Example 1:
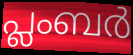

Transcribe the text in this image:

പ്ലംബർ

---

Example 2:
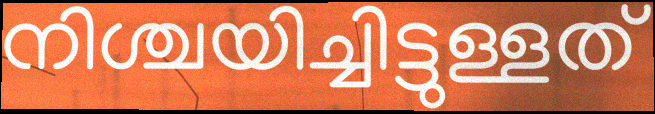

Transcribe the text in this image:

നിശ്ചയിച്ചിട്ടുള്ളത്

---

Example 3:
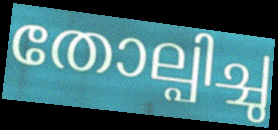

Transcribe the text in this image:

തോല്പിച്ചു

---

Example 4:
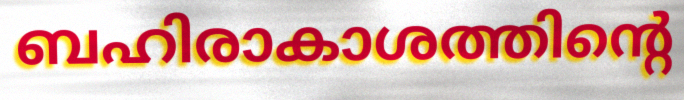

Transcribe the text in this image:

ബഹിരാകാശത്തിന്റെ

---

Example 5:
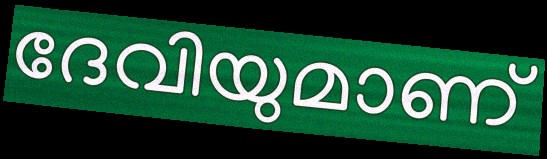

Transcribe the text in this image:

ദേവിയുമാണ്